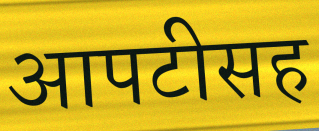
आपटीसह